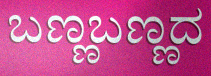
ಬಣ್ಣಬಣ್ಣದ